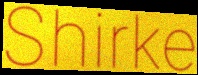
Shirke